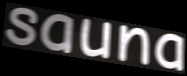
sauna